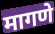
मागणे